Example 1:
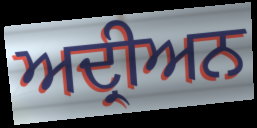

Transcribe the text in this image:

ਅਦ੍ਰੀਅਨ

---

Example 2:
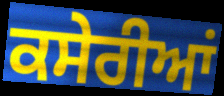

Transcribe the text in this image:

ਕਸੇਰੀਆਂ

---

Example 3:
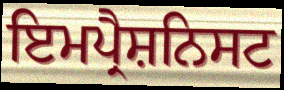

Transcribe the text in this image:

ਇਮਪ੍ਰੈਸ਼ਨਿਸਟ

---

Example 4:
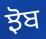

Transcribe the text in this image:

ਝੋਬ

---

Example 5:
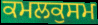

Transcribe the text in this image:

ਕਮਲਕੁਸਮ